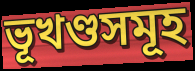
ভূখণ্ডসমূহ